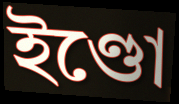
ইণ্ডো